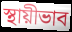
স্থায়ীভাব